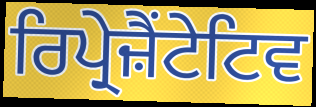
ਰਿਪ੍ਰੇਜ਼ੈਂਟੇਟਿਵ